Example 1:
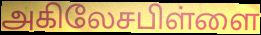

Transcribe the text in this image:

அகிலேசபிள்ளை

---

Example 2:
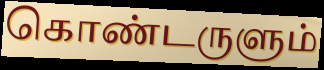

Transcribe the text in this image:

கொண்டருளும்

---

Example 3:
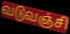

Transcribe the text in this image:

வடுவஞ்சி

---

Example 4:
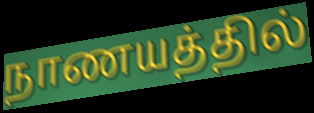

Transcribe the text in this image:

நாணயத்தில்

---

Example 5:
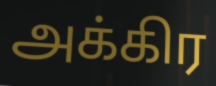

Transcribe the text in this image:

அக்கிர